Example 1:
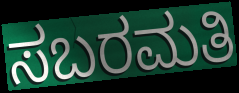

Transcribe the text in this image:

ಸಬರಮತಿ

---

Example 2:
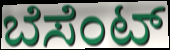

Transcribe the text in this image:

ಬೆಸೆಂಟ್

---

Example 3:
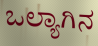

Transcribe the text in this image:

ಒಲ್ಯಾಗಿನ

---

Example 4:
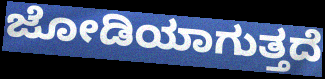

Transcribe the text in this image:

ಜೋಡಿಯಾಗುತ್ತದೆ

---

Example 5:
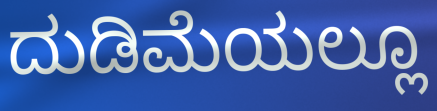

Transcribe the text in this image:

ದುಡಿಮೆಯಲ್ಲೂ